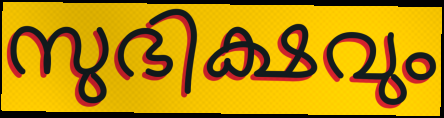
സുഭിക്ഷവും